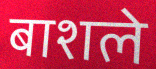
बाशले